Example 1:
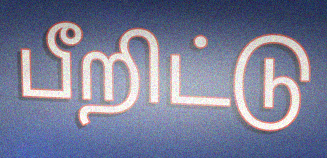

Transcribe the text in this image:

பீறிட்டு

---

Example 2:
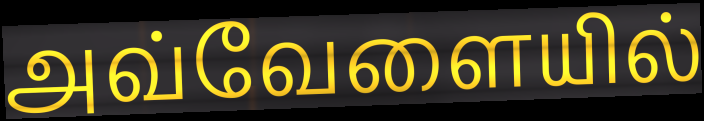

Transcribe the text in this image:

அவ்வேளையில்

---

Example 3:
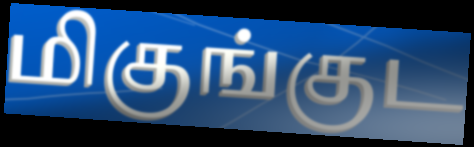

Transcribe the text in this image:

மிகுங்குட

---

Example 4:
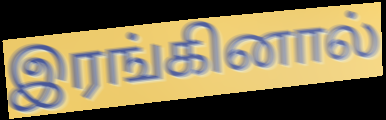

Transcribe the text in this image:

இரங்கினால்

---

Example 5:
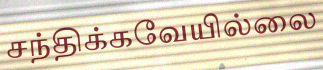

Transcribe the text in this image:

சந்திக்கவேயில்லை